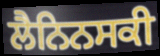
ਲੈਨਿਨਸਕੀ